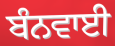
ਬੰਨਵਾਈ